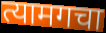
त्यामगचा